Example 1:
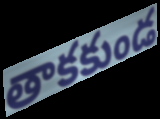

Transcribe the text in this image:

తాకకుండ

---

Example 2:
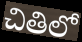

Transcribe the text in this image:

చితిలో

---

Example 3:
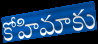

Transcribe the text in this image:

కోహిమాకు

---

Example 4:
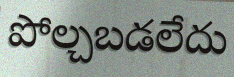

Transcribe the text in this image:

పోల్చబడలేదు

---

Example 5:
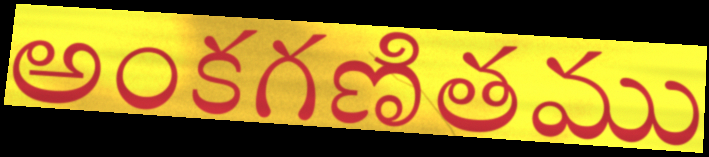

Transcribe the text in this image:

అంకగణితము